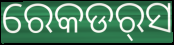
ରେକଡର୍‌ସ